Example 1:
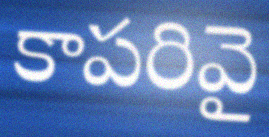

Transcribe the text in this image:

కాపరివై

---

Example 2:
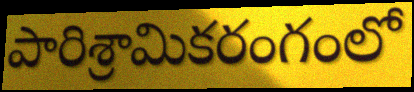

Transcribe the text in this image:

పారిశ్రామికరంగంలో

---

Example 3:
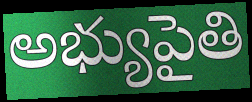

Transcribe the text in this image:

అభ్యుపైతి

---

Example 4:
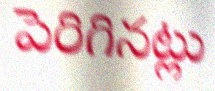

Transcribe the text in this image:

పెరిగినట్లు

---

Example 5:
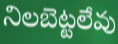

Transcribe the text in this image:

నిలబెట్టలేవు